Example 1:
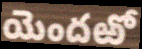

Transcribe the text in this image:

యెందఱో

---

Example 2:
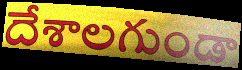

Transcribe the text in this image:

దేశాలగుండా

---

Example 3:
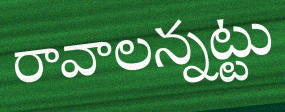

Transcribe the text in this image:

రావాలన్నట్టు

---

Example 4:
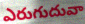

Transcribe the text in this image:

ఎరుగుదువా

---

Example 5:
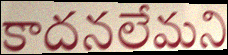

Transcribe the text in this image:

కాదనలేమని